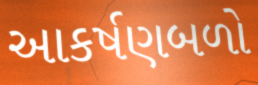
આકર્ષણબળો